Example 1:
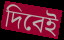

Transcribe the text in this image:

দিবেই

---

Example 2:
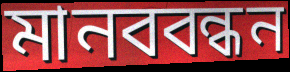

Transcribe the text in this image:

মানববন্ধন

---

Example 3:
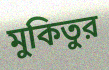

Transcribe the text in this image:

মুকিতুর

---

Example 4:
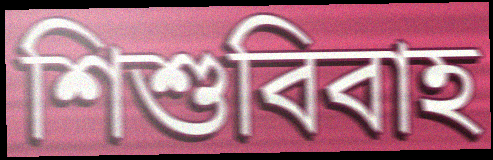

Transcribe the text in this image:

শিশুবিবাহ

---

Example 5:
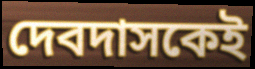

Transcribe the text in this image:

দেবদাসকেই